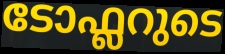
ടോഫ്ലറുടെ